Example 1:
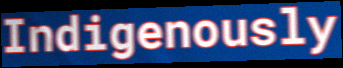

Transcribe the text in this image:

Indigenously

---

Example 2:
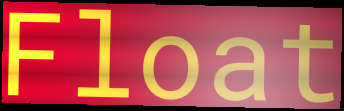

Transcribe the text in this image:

Float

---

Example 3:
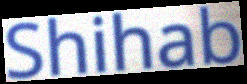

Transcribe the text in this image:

Shihab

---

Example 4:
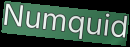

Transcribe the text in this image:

Numquid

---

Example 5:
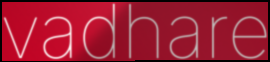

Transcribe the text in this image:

vadhare